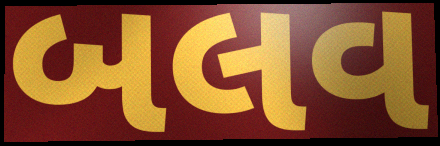
બલવ